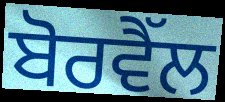
ਬੋਰਵੈੱਲ